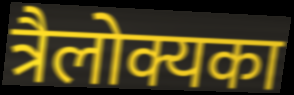
त्रैलोक्यका